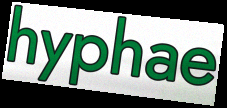
hyphae